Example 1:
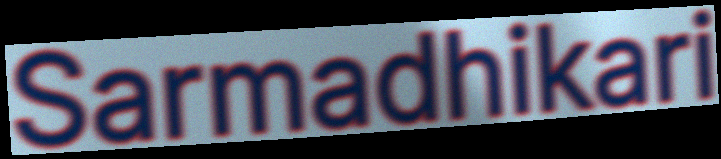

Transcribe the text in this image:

Sarmadhikari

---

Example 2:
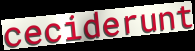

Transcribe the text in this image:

ceciderunt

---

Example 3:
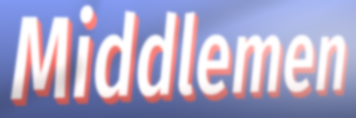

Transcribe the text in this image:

Middlemen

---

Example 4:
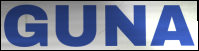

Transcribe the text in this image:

GUNA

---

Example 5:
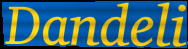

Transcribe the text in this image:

Dandeli